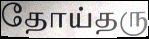
தோய்தரு